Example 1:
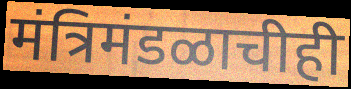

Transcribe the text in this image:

मंत्रिमंडळाचीही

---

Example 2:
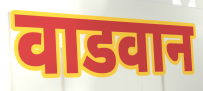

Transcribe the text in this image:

वाडवान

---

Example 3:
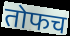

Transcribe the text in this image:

तोफच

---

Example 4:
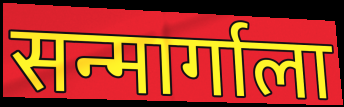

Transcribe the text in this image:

सन्मार्गाला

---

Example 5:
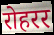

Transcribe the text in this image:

रोहरर